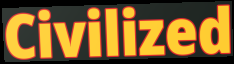
Civilized